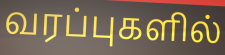
வரப்புகளில்